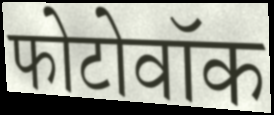
फोटोवॉक